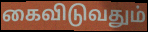
கைவிடுவதும்